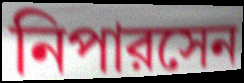
নিপারসেন